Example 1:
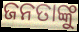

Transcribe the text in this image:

ଜନତାଙ୍କୁ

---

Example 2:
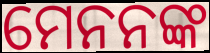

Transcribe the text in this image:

ମେନନଙ୍କ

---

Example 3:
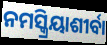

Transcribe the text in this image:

ନମସ୍କ୍ରିୟାଶୀର୍ବା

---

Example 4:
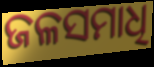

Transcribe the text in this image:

ଜଳସମାଧି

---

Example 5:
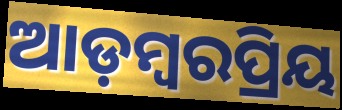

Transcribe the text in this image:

ଆଡ଼ମ୍ବରପ୍ରିୟ